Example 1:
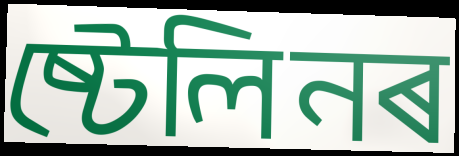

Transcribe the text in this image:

ষ্টেলিনৰ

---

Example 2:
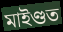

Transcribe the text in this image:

মাইণ্ডত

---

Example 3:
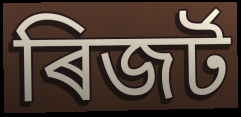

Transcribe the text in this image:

ৰিজৰ্ট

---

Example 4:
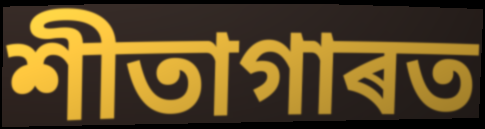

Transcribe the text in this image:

শীতাগাৰত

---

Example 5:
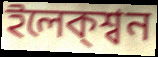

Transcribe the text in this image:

ইলেক্‌শ্বন